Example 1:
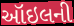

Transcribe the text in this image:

ઑઇલની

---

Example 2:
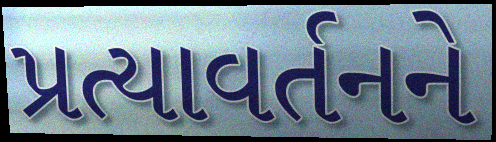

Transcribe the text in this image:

પ્રત્યાવર્તનને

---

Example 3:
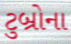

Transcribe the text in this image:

ટુબ્રોના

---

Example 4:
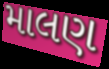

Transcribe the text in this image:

માલણ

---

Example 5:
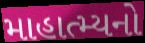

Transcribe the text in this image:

માહાત્મ્યનો